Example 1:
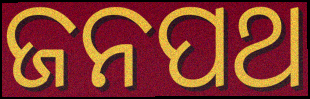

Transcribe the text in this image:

ଜନପଥ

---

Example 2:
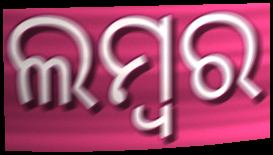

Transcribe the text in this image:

ଲମ୍ୱର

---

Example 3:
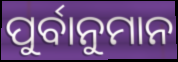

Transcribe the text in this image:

ପୁର୍ବାନୁମାନ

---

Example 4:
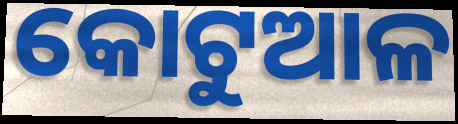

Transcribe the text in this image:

କୋଟୁଆଳ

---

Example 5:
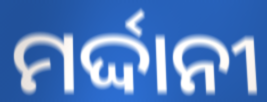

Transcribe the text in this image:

ମର୍ଦ୍ଦାନୀ